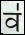
व॑